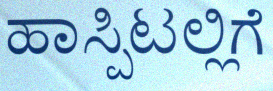
ಹಾಸ್ಪಿಟಲ್ಲಿಗೆ